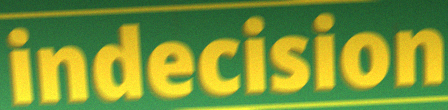
indecision